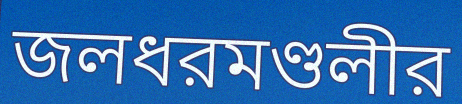
জলধরমণ্ডলীর